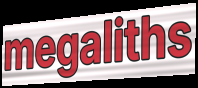
megaliths